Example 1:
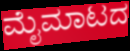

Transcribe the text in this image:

ಮೈಮಾಟದ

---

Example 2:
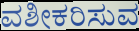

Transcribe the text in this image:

ವಶೀಕರಿಸುವ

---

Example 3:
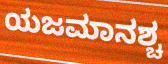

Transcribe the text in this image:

ಯಜಮಾನಶ್ಚ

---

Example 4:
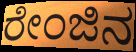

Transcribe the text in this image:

ರೇಂಜಿನ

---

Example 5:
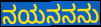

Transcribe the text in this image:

ನಯನನನು